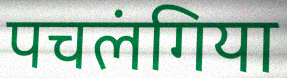
पचलंगिया